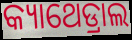
କ୍ୟାଥେଡ୍ରାଲ